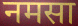
नमसा